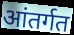
आंतर्गत